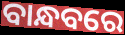
ବାନ୍ଧବରେ